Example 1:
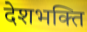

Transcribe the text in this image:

देशभक्ति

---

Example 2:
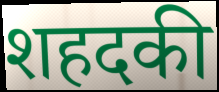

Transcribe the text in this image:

शहदकी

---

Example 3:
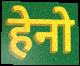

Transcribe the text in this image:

हेनो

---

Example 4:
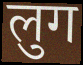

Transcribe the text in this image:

लुग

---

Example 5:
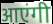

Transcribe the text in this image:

आएंगी